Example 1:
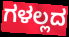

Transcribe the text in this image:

ಗಳಲ್ಲದ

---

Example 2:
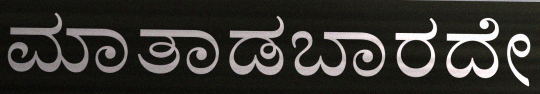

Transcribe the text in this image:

ಮಾತಾಡಬಾರದೇ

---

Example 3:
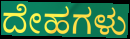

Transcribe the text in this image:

ದೇಹಗಳು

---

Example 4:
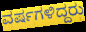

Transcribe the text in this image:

ವರ್ಷಗಳಿದ್ದರು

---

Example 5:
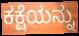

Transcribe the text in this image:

ಕಕ್ಷೆಯನ್ನು